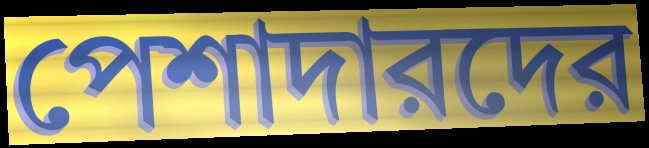
পেশাদারদের